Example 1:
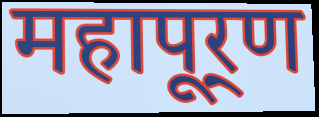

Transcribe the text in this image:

महापूर्ण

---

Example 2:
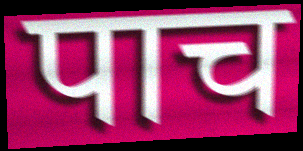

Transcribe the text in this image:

पाच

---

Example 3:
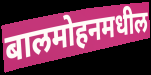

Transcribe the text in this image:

बालमोहनमधील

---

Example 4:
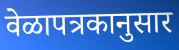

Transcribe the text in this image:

वेळापत्रकानुसार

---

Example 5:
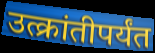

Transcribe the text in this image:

उत्क्रांतीपर्यंत